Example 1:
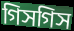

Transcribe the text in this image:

গিসগিস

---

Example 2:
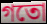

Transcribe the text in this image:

গতো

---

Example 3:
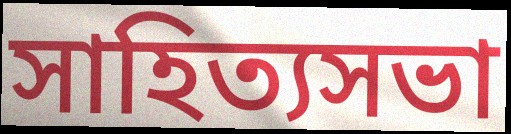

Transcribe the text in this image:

সাহিত্যসভা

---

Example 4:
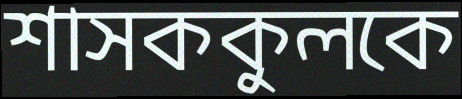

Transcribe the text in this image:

শাসককুলকে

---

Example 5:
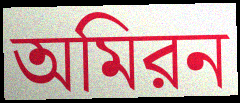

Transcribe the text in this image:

অমিরন